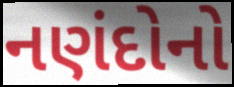
નણંદોનો